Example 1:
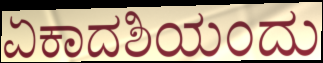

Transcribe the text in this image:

ಏಕಾದಶಿಯಂದು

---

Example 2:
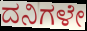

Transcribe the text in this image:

ದನಿಗಳೇ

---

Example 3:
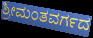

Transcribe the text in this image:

ಶ್ರೀಮಂತವರ್ಗದ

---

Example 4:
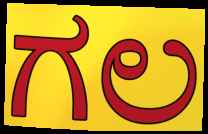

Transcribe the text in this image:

ಗಲ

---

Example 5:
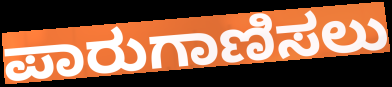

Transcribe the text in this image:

ಪಾರುಗಾಣಿಸಲು